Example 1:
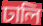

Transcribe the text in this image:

ঢালি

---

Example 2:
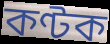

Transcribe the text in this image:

কণ্টক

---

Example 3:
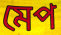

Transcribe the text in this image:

মেপ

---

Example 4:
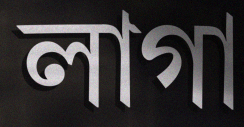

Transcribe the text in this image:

লাগা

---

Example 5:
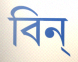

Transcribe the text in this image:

বিন্